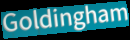
Goldingham